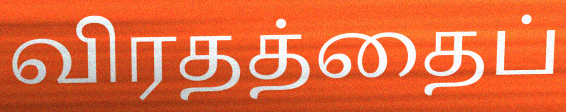
விரதத்தைப்